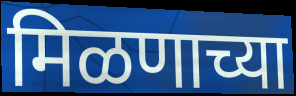
मिळणाच्या